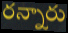
రన్నారు